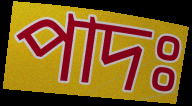
পাদঃ